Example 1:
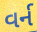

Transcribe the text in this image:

વર્ન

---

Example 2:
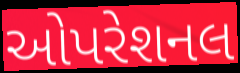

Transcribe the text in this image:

ઓપરેશનલ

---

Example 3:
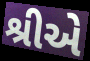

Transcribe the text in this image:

શ્રીએ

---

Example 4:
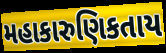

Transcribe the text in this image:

મહાકારુણિકતાય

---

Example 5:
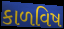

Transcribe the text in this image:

કાળવિષ